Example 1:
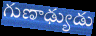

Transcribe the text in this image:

గుణాఢ్యుడు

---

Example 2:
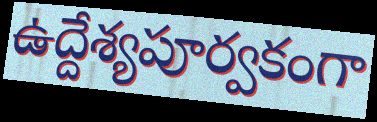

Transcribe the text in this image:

ఉద్దేశ్యపూర్వకంగా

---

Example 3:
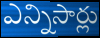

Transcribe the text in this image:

ఎన్నిసార్లు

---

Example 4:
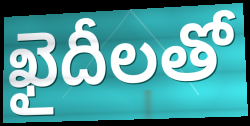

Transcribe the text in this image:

ఖైదీలతో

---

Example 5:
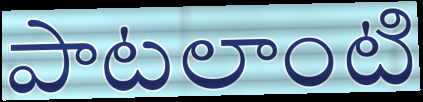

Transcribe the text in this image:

పాటలాంటి